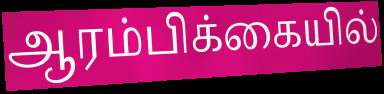
ஆரம்பிக்கையில்